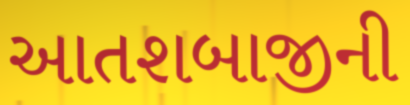
આતશબાજીની